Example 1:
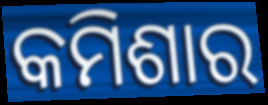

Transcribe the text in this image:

କମିଶାର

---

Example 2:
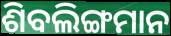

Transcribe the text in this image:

ଶିବଲିଙ୍ଗମାନ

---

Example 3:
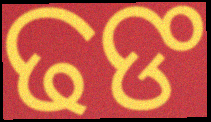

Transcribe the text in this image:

ଢଙ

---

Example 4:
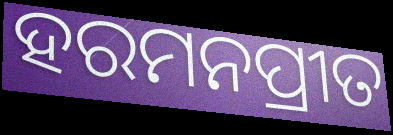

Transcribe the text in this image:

ହରମନପ୍ରୀତ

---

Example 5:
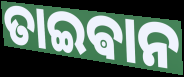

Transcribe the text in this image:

ତାଇଵାନ